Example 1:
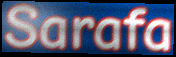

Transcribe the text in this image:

Sarafa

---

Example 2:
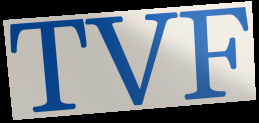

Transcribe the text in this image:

TVF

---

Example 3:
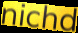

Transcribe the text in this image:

nichd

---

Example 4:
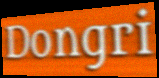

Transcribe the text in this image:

Dongri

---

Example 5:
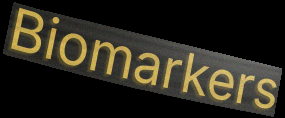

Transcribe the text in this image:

Biomarkers